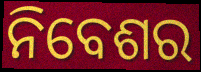
ନିବେଶର